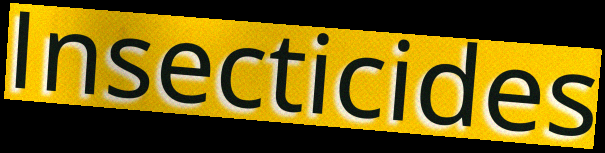
Insecticides